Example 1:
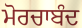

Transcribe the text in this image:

ਮੋਰਚਾਬੰਦ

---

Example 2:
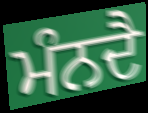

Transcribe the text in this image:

ਮੰਨਦੈ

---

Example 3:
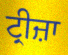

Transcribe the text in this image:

ਟ੍ਰੀਜ਼ਾ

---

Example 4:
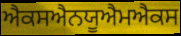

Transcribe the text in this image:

ਐਕਸਐਨਯੂਐਮਐਕਸ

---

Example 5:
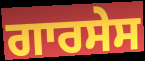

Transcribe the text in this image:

ਗਾਰਸੇਸ